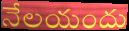
నేలయందు